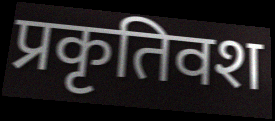
प्रकृतिवश